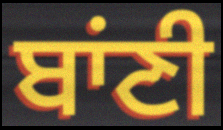
ਬਾਂਣੀ